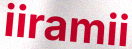
iiramii